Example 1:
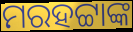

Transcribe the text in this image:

ମରହଟ୍ଟାଙ୍କ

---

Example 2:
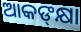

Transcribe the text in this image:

ଆକଙ୍‌କ୍ଷା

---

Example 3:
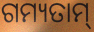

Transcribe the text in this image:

ଗମ୍ୟତାମ୍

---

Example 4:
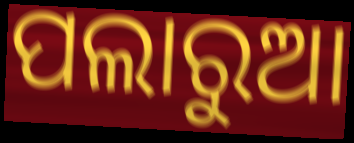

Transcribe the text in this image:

ପଲାରୁଆ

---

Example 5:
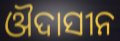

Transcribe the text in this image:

ଔଦାସୀନ